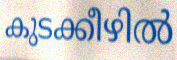
കുടക്കീഴിൽ